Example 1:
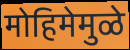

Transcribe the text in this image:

मोहिमेमुळे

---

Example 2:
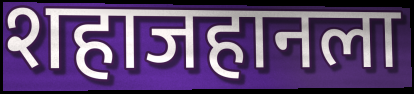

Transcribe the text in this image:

शहाजहानला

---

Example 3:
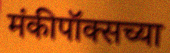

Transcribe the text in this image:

मंकीपॉक्सच्या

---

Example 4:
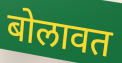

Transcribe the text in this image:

बोलावत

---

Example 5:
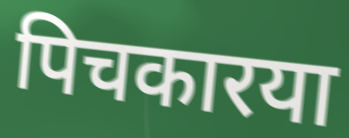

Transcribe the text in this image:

पिचकारया